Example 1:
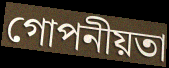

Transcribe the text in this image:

গোপনীয়তা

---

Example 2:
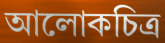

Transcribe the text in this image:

আলোকচিত্ৰ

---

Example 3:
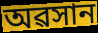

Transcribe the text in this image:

অৱসান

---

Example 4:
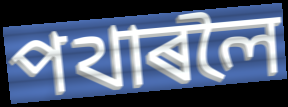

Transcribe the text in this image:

পথাৰলৈ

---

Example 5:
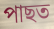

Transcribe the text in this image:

পাছত